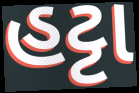
હટ્ટા